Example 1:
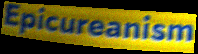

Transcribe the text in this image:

Epicureanism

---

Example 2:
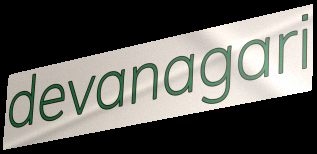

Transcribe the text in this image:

devanagari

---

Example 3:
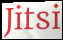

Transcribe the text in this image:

Jitsi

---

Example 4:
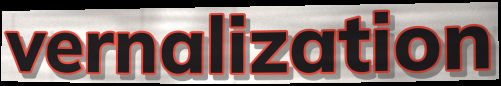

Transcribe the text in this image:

vernalization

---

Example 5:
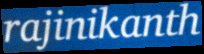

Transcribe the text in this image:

rajinikanth